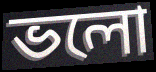
ভলো